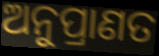
ଅନୁପ୍ରାଣତ